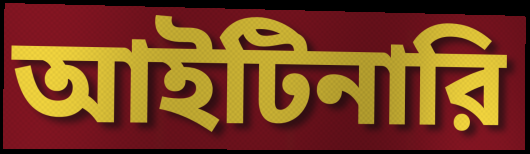
আইটিনারি